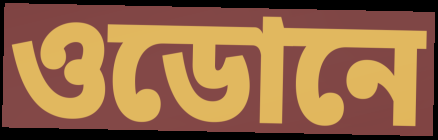
ওডোনে